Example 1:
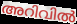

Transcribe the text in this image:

അറിവിൽ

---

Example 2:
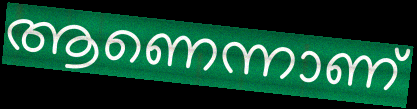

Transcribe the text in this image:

ആണെന്നാണ്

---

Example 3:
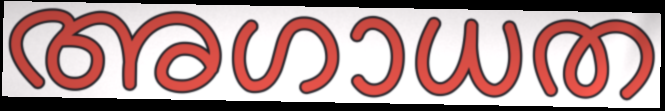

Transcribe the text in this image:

അഗാധത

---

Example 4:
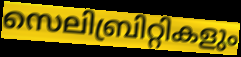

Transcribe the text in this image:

സെലിബ്രിറ്റികളും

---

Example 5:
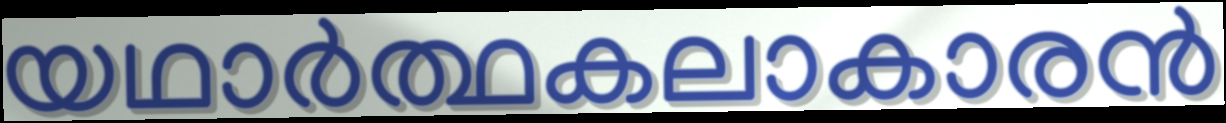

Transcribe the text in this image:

യഥാർത്ഥകലാകാരൻ